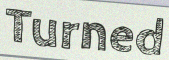
Turned